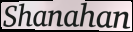
Shanahan